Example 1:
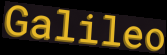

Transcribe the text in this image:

Galileo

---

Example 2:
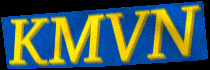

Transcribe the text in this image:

KMVN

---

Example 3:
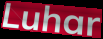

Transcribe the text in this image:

Luhar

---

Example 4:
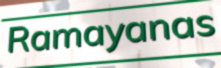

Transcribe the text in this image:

Ramayanas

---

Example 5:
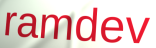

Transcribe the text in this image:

ramdev